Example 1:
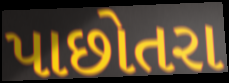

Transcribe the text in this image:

પાછોતરા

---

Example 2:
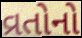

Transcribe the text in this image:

વ્રતોનો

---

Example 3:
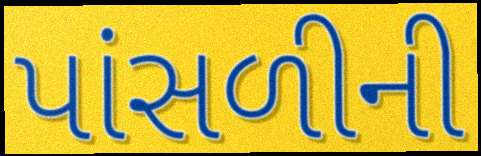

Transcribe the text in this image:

પાંસળીની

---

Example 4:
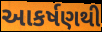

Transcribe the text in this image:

આકર્ષણથી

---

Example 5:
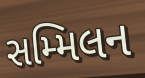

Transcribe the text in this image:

સમ્મિલન